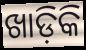
ଖାଡ଼ିକି